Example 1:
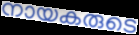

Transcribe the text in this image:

നായകരുടെ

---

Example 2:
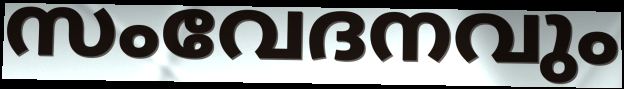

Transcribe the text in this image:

സംവേദനവും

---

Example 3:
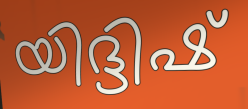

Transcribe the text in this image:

യിദ്ദിഷ്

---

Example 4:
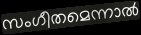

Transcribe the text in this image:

സംഗീതമെന്നാൽ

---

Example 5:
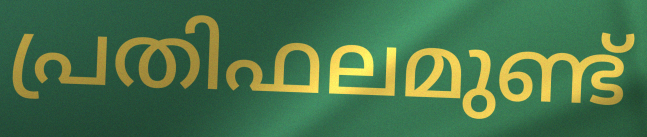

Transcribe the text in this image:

പ്രതിഫലമുണ്ട്